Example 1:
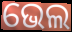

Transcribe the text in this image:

ଭେଲ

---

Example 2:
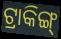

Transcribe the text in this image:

ଟ୍ରାକିଙ୍ଗ୍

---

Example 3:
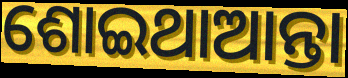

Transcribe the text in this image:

ଶୋଇଥାଆନ୍ତା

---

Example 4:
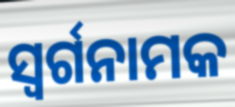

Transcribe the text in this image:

ସ୍ଵର୍ଗନାମକ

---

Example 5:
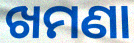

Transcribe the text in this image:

ଖମଣା